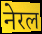
नेरल